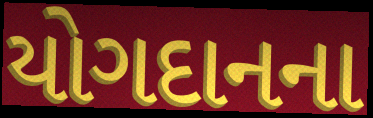
યોગદાનના